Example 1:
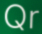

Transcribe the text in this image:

Qr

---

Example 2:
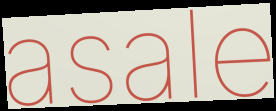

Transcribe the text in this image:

asale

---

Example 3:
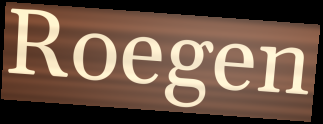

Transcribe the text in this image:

Roegen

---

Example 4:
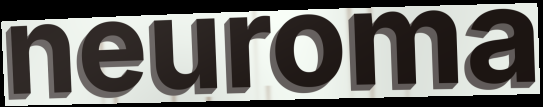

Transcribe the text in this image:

neuroma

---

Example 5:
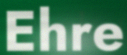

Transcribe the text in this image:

Ehre